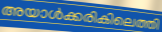
അയാൾക്കരികിലെത്തി